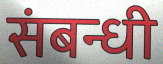
संबन्‍धी